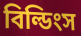
বিল্ডিংস